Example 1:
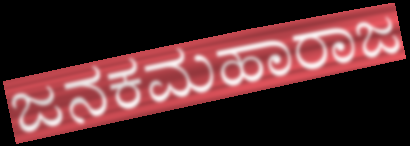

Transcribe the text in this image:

ಜನಕಮಹಾರಾಜ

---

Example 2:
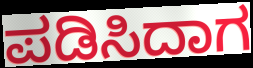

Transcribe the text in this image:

ಪಡಿಸಿದಾಗ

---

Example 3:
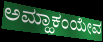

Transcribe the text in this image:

ಅಮ್ಹಾಕಂಯೇವ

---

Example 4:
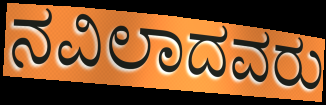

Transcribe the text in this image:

ನವಿಲಾದವರು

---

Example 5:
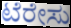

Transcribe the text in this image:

ಟೆರೇಸು